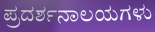
ಪ್ರದರ್ಶನಾಲಯಗಳು